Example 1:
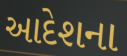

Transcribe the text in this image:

આદેશના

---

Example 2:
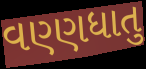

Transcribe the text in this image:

વણ્ણધાતુ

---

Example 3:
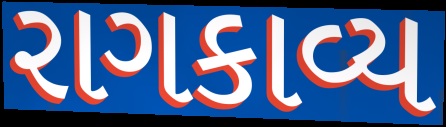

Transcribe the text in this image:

રાગકાવ્ય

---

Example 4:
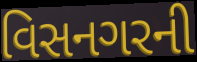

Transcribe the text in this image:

વિસનગરની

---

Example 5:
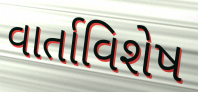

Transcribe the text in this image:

વાર્તાવિશેષ